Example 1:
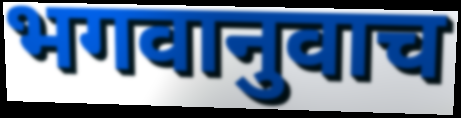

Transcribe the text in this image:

भगवानुवाच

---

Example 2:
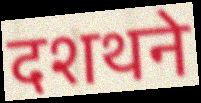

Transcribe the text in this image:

दशथने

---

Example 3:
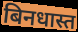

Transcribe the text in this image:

बिनधास्त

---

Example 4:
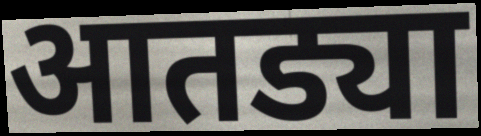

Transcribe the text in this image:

आतड्या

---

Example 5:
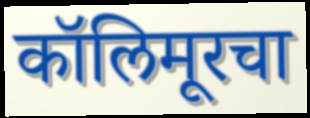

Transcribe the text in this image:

कॉलिमूरचा